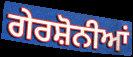
ਗੇਰਸ਼ੋਨੀਆਂ